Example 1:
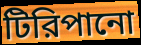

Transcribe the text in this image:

টিরিপানো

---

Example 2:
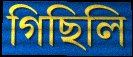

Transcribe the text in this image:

গিছিলি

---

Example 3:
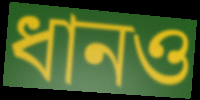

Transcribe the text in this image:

ধানও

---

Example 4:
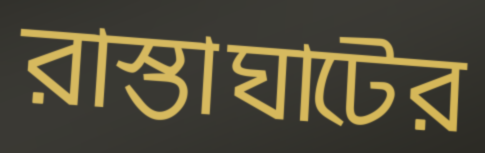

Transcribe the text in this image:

রাস্তাঘাটের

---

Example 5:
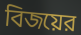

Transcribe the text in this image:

বিজয়ের